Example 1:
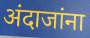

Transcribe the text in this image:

अंदाजांना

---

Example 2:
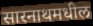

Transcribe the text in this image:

सारनाथमधील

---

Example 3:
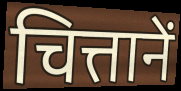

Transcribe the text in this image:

चित्तानें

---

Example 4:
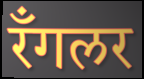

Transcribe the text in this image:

रॅंगलर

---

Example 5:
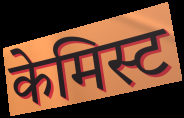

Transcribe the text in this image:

केमिस्ट